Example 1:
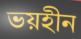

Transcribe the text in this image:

ভয়হীন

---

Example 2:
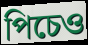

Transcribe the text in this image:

পিচেও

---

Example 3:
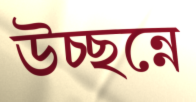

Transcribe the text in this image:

উচ্ছন্নে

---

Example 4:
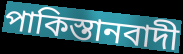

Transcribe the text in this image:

পাকিস্তানবাদী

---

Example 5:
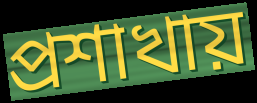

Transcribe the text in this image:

প্রশাখায়